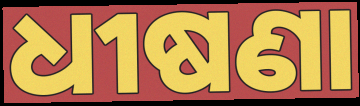
ଧୀଷଣା